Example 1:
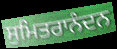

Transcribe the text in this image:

ਸੁਮਿਤਰਾਨੰਦਨ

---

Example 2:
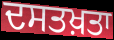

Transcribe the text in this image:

ਦਸਤਖ਼ਤਾ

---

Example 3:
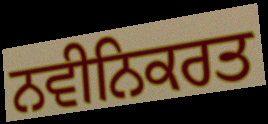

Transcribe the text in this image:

ਨਵੀਨਿਕਰਤ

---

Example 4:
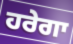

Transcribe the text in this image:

ਹਰੇਗਾ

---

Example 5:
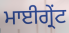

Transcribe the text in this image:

ਮਾਈਗ੍ਰੇਂਟ